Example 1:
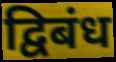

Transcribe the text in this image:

द्विबंध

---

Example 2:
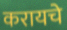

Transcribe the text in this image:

करायचे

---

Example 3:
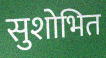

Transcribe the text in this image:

सुशोभित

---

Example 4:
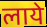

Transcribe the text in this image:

लाये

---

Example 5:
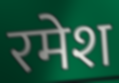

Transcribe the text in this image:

रमेश